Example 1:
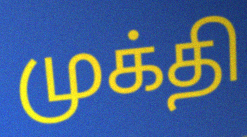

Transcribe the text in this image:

முக்தி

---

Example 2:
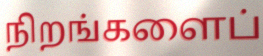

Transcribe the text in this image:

நிறங்களைப்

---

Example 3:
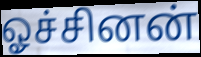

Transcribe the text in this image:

ஓச்சினன்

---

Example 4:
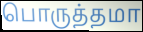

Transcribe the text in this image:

பொருத்தமா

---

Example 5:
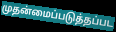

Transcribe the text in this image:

முதன்மைப்படுத்தப்பட